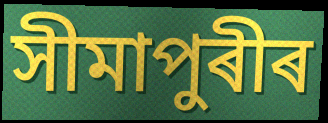
সীমাপুৰীৰ